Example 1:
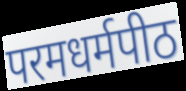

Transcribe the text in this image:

परमधर्मपीठ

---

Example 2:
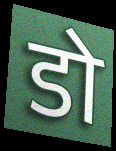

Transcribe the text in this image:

डो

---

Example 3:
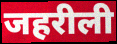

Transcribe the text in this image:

जहरीली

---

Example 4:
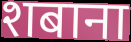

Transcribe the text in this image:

शबाना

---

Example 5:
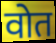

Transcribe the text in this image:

वोत